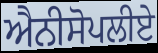
ਐਨੀਸੋਪਲੀਏ